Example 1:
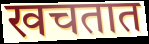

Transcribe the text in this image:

खचतात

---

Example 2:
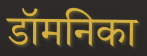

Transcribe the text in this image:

डॉमनिका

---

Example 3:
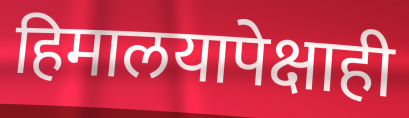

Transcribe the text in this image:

हिमालयापेक्षाही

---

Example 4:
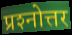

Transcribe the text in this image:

प्रश्नोत्तर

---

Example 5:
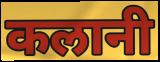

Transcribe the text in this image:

कलानी